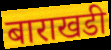
बाराखडी